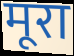
मूरा